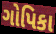
ગોપિકા